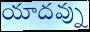
యాదవ్ను